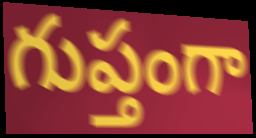
గుప్తంగా